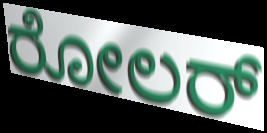
ರೋಲರ್